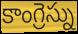
కాంగ్రెస్ను